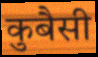
कुबैसी